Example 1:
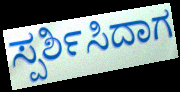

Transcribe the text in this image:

ಸ್ಪರ್ಶಿಸಿದಾಗ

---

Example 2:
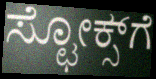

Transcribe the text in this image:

ಸ್ಟೋಕ್ಸ್‌ಗೆ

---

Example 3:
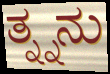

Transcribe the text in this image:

ತ್ನ್ನನು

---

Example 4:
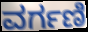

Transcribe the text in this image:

ವರ್ಗಣಿ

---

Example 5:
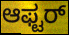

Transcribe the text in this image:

ಆಫ್ಟರ್